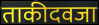
ताकीदवजा